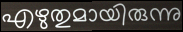
എഴുതുമായിരുന്നു